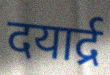
दयार्द्र